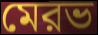
মেরভ